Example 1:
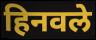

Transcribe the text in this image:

हिनवले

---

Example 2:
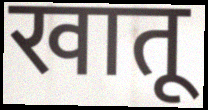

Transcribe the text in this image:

खातू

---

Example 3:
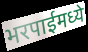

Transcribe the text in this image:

भरपाईमध्ये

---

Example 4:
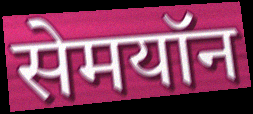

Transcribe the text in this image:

सेमयॉन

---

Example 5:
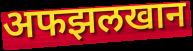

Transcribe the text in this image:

अफझलखान